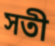
সতী